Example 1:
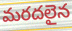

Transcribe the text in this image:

మరదలైన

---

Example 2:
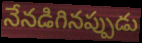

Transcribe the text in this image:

నేనడిగినప్పుడు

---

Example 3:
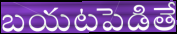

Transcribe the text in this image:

బయటపెడితే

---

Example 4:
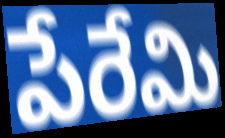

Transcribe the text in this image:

పేరేమి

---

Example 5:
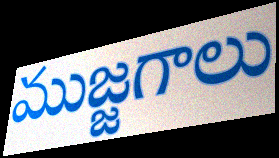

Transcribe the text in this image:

ముజ్జగాలు